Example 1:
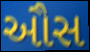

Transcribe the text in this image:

ઔસ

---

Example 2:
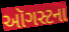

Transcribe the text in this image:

ઑગસ્ટના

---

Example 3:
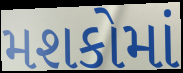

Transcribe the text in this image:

મશકોમાં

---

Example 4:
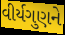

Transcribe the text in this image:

વીર્યગુણને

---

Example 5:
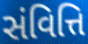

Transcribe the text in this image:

સંવિત્તિ